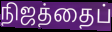
நிஜத்தைப்